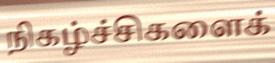
நிகழ்ச்சிகளைக்